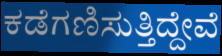
ಕಡೆಗಣಿಸುತ್ತಿದ್ದೇವೆ